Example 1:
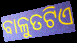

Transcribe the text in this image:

ବାଳୁତଟିଏ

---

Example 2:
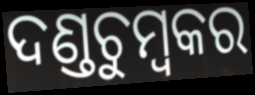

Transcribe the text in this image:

ଦଣ୍ଡଚୁମ୍ବକର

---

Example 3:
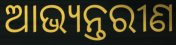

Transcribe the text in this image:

ଆଭ୍ୟନ୍ତରୀଣ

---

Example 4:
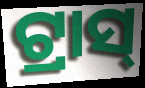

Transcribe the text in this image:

ଟ୍ରାସ୍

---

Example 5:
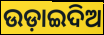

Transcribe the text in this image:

ଉଡ଼ାଇଦିଅ